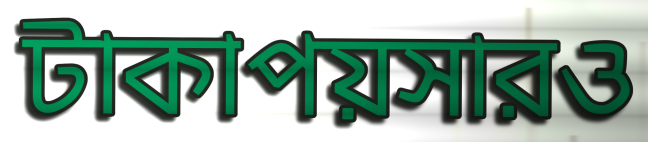
টাকাপয়সারও